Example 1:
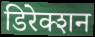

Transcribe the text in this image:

डिरेक्शन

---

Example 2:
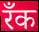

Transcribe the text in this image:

रँक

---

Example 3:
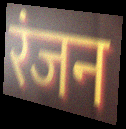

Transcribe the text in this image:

रंजन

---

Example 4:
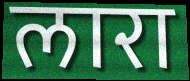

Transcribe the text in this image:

लारा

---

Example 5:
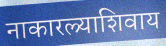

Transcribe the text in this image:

नाकारल्याशिवाय